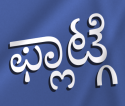
ಫ್ಲಾಟ್ಗೆ